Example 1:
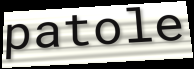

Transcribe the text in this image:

patole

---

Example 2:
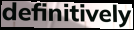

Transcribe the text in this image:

definitively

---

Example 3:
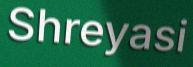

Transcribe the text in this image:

Shreyasi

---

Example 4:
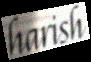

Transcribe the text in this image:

harish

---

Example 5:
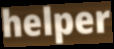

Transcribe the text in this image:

helper